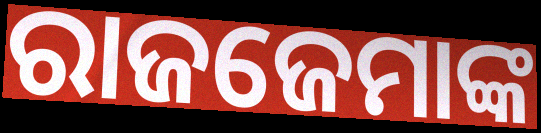
ରାଜଜେମାଙ୍କ